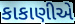
કાકાણીએ